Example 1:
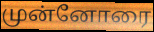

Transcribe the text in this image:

முன்னோரை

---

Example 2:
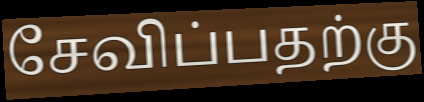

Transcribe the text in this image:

சேவிப்பதற்கு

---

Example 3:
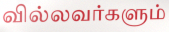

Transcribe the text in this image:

வில்லவர்களும்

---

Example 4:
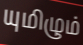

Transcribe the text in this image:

யுமிழும்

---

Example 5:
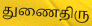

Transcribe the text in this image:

துணைதிரு